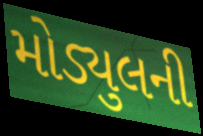
મોડ્યુલની